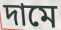
দামে